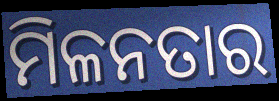
ମିଳନତାର